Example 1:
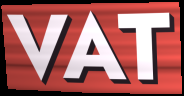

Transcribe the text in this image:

VAT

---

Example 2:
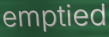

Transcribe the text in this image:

emptied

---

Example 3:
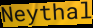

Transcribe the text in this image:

Neythal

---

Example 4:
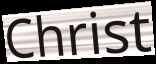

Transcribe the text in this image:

Christ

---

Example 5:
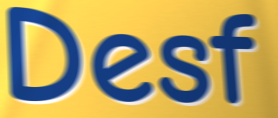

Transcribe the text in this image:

Desf